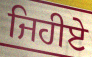
ਜਿਹੀਏ